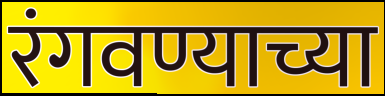
रंगवण्याच्या